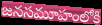
జనసమూహంలోకి